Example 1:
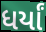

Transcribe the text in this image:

ધર્યાં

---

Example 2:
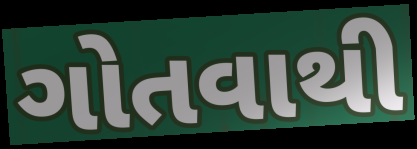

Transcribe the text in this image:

ગોતવાથી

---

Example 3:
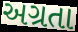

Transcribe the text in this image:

અગ્રતા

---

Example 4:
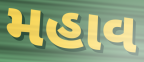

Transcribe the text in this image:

મહાવ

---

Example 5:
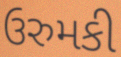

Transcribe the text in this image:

ઉરુમકી